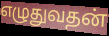
எழுதுவதன்